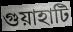
গুয়াহাটি